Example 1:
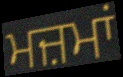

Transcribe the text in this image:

ਮਜ਼ਮਾਂ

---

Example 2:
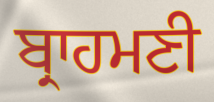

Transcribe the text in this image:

ਬ੍ਰਾਹਮਣੀ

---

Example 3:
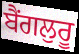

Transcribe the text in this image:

ਬੈਂਗਲੁਰੂ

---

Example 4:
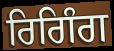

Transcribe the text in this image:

ਰਿਗਿੰਗ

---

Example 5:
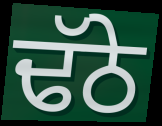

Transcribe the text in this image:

ਢੱਠੇ